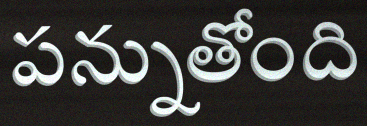
పన్నుతోంది